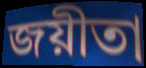
জয়ীতা